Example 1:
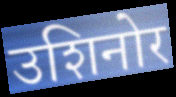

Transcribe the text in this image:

उशिनोर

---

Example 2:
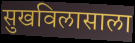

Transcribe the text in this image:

सुखविलासाला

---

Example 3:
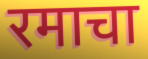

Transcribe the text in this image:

रमाचा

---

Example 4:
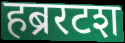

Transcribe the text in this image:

हब्ररटश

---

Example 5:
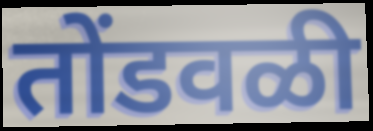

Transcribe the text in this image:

तोंडवळी